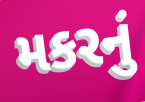
મકરનું